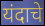
यंदाचे